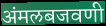
अंमलबजवणी